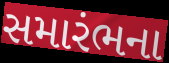
સમારંભના